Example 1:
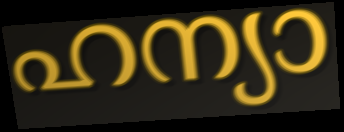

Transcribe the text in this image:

ഹന്യാ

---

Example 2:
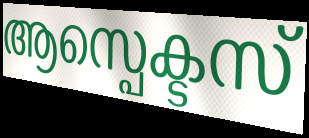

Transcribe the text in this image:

ആസ്പെക്ടസ്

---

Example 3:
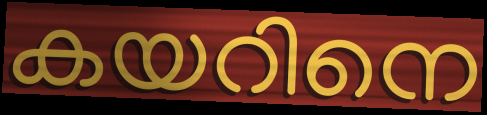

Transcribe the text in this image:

കയറിനെ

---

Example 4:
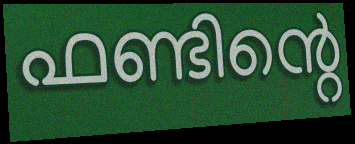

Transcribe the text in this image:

ഫണ്ടിന്റെ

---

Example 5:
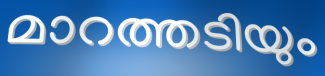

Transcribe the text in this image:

മാറത്തടിയും